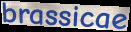
brassicae